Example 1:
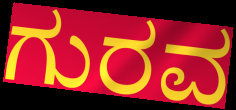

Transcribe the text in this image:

ಗುರವ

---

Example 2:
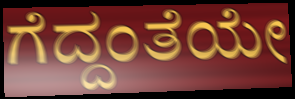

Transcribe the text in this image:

ಗೆದ್ದಂತೆಯೇ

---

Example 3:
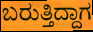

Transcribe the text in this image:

ಬರುತ್ತಿದ್ದಾಗ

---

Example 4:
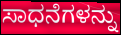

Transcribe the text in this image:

ಸಾಧನೆಗಳನ್ನು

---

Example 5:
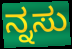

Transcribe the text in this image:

ನ್ನಸು